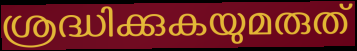
ശ്രദ്ധിക്കുകയുമരുത്